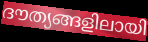
ദൗത്യങ്ങളിലായി